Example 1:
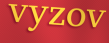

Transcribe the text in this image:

vyzov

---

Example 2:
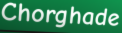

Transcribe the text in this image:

Chorghade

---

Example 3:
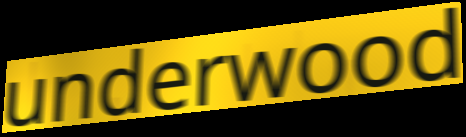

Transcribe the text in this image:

underwood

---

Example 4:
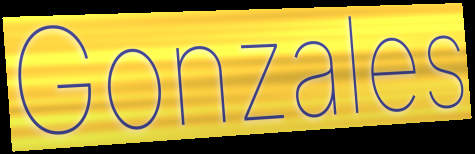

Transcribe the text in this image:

Gonzales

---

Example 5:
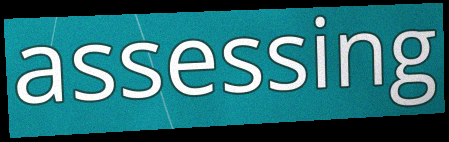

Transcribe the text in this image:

assessing